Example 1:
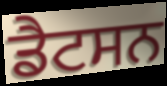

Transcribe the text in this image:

ਡੈਟਸਨ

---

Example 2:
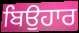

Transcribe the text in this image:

ਬਿਉਹਾਰ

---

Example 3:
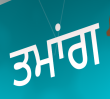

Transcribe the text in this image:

ਤਮਾਂਗ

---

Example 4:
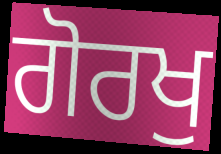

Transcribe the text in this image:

ਗੋਰਖੁ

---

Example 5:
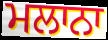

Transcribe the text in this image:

ਮਲਾਨਾ